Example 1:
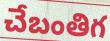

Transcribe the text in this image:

చేబంతిగ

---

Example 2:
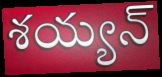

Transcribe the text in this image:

శయ్యన్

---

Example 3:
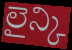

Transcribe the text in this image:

లైన్కి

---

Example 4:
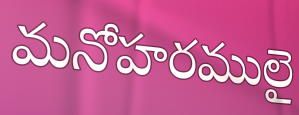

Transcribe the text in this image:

మనోహరములై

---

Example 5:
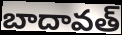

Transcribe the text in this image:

బాదావత్